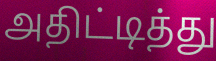
அதிட்டித்து